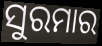
ସୁରମାର